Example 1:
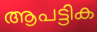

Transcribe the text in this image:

ആപട്ടിക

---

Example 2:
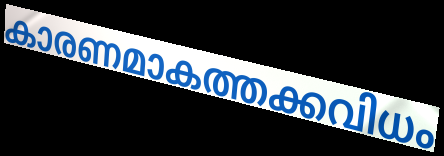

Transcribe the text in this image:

കാരണമാകത്തക്കവിധം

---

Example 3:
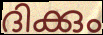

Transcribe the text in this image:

ദിക്കും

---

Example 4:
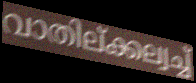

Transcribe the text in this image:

വാതില്ക്കല്വച്ച്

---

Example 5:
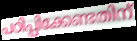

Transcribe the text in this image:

പഠിപ്പിക്കേണ്ടതിന്